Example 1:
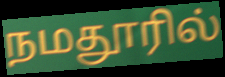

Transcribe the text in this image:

நமதூரில்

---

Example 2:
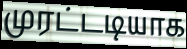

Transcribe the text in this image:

முரட்டடியாக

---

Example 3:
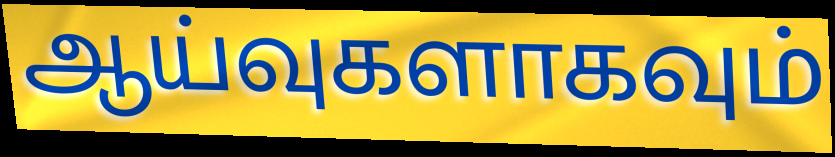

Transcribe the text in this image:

ஆய்வுகளாகவும்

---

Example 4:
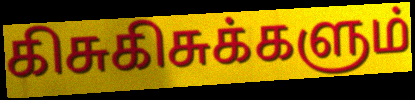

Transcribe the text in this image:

கிசுகிசுக்களும்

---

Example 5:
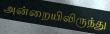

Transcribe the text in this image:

அன்றையிலிருந்து